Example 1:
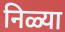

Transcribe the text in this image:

निळ्या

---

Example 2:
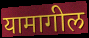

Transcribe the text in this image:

यामागील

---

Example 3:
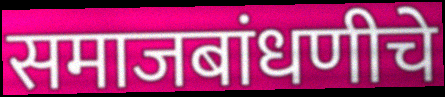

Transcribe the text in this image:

समाजबांधणीचे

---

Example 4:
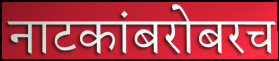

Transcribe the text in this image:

नाटकांबरोबरच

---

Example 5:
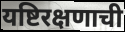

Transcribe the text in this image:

यष्टिरक्षणाची